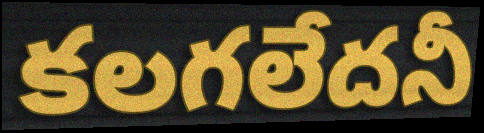
కలగలేదనీ